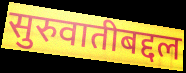
सुरुवातीबद्दल